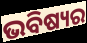
ଭବିଷ୍ୟର